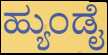
ಹ್ಯುಂಡೈ